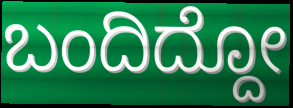
ಬಂದಿದ್ದೋ